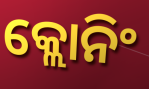
କ୍ଲୋନିଂ